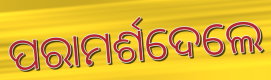
ପରାମର୍ଶଦେଲେ